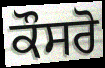
ਕੌਸਰੋ